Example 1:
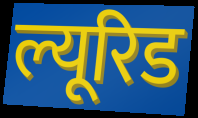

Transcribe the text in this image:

ल्यूरिड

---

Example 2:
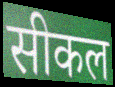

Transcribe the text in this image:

सीकल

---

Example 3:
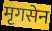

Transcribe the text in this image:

मृगसेन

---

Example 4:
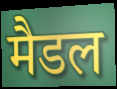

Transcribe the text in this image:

मैडल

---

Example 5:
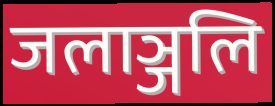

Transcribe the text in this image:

जलाञ्जलि